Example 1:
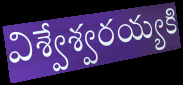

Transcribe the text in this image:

విశ్వేశ్వరయ్యకి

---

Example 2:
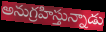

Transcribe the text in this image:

అనుగ్రహిస్తున్నాడు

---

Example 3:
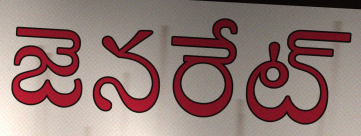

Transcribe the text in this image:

జెనరేట్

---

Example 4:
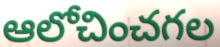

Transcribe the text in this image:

ఆలోచించగల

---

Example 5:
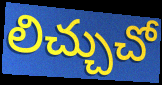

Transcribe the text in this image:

లిచ్చుచో